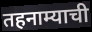
तहनाम्याची